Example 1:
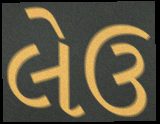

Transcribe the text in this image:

લેઉ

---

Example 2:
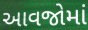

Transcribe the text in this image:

આવજોમાં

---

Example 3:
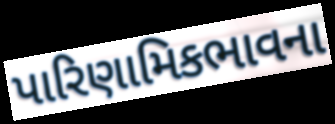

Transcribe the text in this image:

પારિણામિકભાવના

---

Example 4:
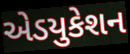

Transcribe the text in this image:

એડયુકેશન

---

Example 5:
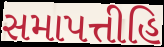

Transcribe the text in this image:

સમાપત્તીહિ